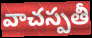
వాచస్పతీ